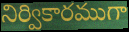
నిర్వికారముగా